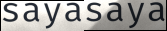
sayasaya